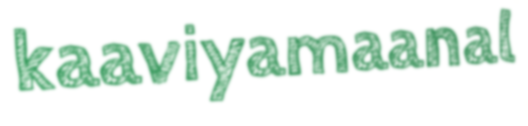
kaaviyamaanal